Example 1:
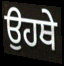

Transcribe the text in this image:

ਉਹਥੇ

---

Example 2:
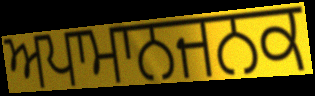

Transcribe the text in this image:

ਅਪਾਮਾਨਜਨਕ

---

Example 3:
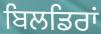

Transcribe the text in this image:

ਬਿਲਡਿਰਾਂ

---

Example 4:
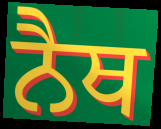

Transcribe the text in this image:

ਨੈਥ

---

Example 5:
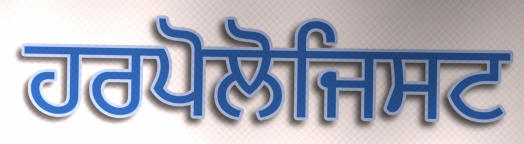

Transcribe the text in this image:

ਹਰਪੋਲੋਜਿਸਟ